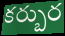
కర్బుర